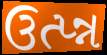
ઉત્પ્ન્ન